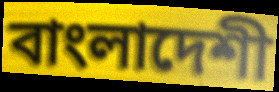
বাংলাদেশী